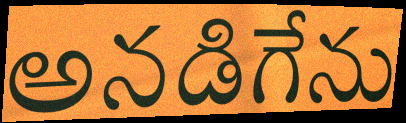
అనడిగేను